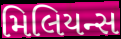
મિલિયન્સ